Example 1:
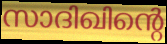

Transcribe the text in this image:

സാദിഖിന്റെ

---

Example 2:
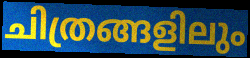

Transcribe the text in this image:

ചിത്രങ്ങളിലും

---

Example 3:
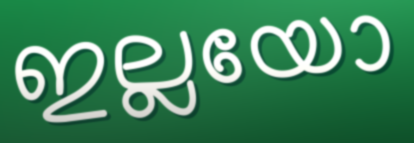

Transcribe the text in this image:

ഇല്ലയോ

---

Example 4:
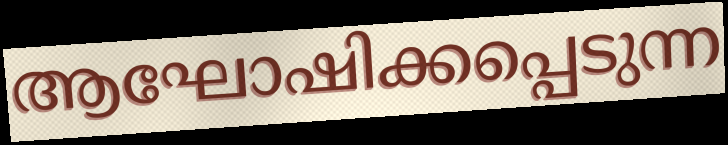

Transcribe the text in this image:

ആഘോഷിക്കപ്പെടുന്ന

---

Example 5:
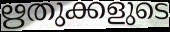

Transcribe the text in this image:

ഋതുക്കളുടെ